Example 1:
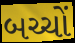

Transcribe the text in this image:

બચ્ચોં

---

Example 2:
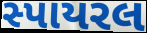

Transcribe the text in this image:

સ્પાયરલ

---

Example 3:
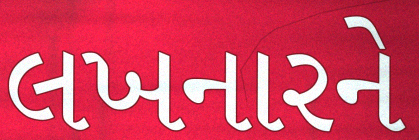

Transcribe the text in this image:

લખનારને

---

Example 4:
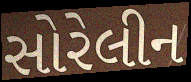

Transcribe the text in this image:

સોરેલીન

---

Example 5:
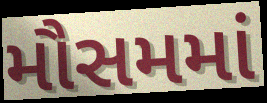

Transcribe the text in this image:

મૌસમમાં